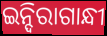
ଇନ୍ଦିରାଗାନ୍ଧୀ